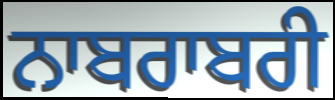
ਨਾਬਰਾਬਰੀ